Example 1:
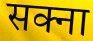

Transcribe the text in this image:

सक्ना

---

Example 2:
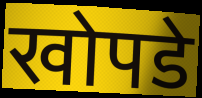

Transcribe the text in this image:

खोपडे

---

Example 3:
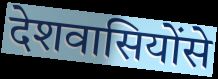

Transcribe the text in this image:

देशवासियोंसे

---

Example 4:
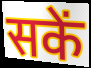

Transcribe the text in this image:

सकें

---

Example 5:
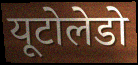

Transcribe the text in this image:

यूटोलेडो